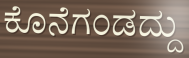
ಕೊನೆಗಂಡದ್ದು